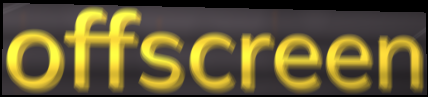
offscreen